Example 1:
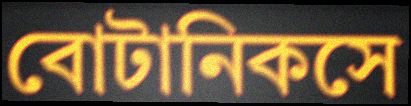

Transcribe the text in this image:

বোটানিকসে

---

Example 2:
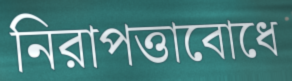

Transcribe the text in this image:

নিরাপত্তাবোধে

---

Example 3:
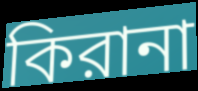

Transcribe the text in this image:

কিরানা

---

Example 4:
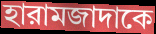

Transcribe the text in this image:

হারামজাদাকে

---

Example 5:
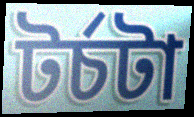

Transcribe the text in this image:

টর্চটা